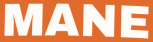
MANE